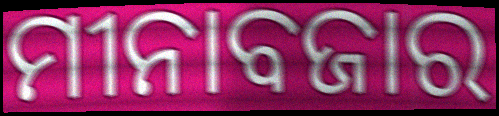
ମୀନାବଜାର